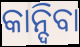
କାନ୍ଦିବା